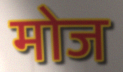
मोज